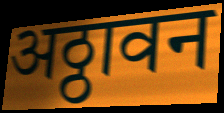
अठ्ठावन